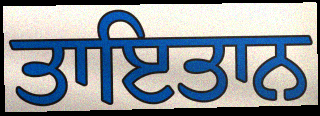
ਤਾਇਤਾਨ